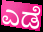
ಎಡೆ